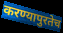
करण्यापुरतेच